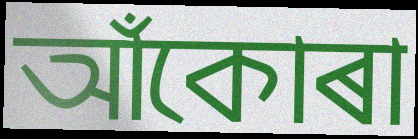
আঁকোৰা